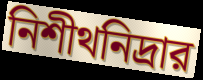
নিশীথনিদ্রার